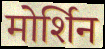
मोर्शिन